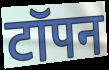
टॉपन